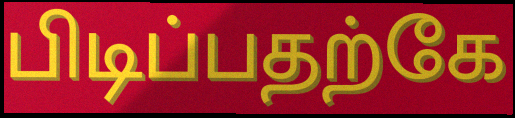
பிடிப்பதற்கே